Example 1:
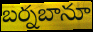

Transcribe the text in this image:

బర్నబానూ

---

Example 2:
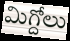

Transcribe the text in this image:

మిగ్దోలు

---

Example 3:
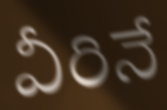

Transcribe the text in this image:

వీరినే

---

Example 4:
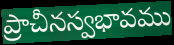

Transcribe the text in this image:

ప్రాచీనస్వభావము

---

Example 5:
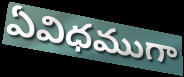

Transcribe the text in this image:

ఏవిధముగా